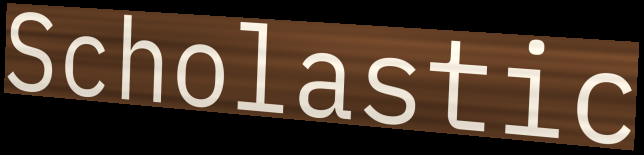
Scholastic